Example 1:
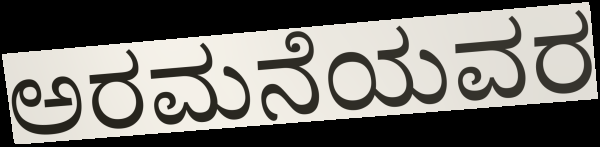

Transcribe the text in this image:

ಅರಮನೆಯವರ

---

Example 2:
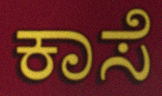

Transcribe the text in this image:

ಕಾಸೆ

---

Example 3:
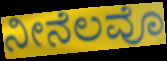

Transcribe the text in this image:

ನೀನೆಲವೊ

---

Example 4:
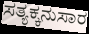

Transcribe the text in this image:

ಸತ್ಯಕ್ಕನುಸಾರ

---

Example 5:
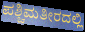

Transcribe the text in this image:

ಪಶ್ಚಿಮತೀರದಲ್ಲಿ